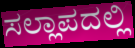
ಸಲ್ಲಾಪದಲ್ಲಿ